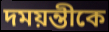
দময়ন্তীকে